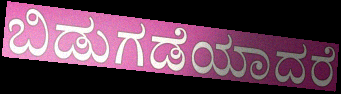
ಬಿಡುಗಡೆಯಾದರೆ